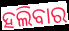
ହଲିବାର